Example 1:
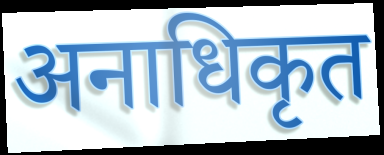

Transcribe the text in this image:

अनाधिकृत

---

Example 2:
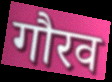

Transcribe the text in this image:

गौरव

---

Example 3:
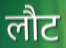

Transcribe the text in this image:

लौट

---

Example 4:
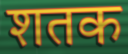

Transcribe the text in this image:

शतक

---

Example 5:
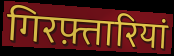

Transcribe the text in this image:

गिरफ़्तारियां